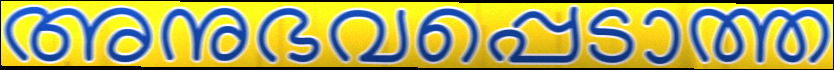
അനുഭവപ്പെടാത്ത